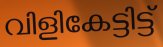
വിളികേട്ടിട്ട്